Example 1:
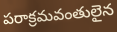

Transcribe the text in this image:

పరాక్రమవంతులైన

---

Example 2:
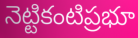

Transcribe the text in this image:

నెట్టికంటిప్రభూ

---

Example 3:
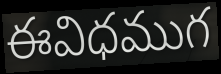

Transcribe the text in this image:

ఈవిధముగ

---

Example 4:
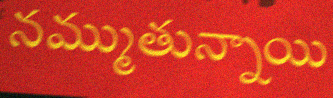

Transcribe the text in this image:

నమ్ముతున్నాయి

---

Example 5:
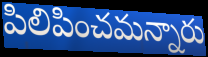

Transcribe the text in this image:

పిలిపించమన్నారు